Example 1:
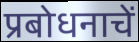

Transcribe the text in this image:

प्रबोधनाचें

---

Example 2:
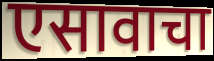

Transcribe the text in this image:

एसावाचा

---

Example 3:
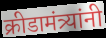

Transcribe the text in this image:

क्रीडामंत्र्यांनी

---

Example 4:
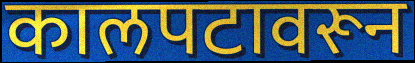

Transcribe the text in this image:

कालपटावरून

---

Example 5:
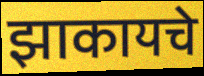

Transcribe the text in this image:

झाकायचे